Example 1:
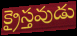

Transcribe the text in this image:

క్రైస్తవుడు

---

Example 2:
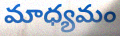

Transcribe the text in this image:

మాధ్యమం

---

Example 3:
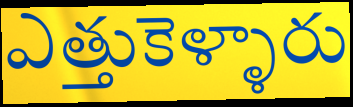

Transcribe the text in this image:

ఎత్తుకెళ్ళారు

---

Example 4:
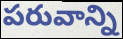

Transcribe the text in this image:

పరువాన్ని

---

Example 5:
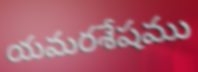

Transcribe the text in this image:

యమరశేషము